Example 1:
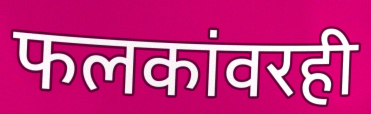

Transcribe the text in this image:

फलकांवरही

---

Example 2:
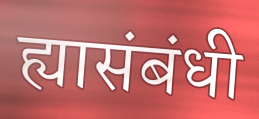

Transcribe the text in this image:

ह्यासंबंधी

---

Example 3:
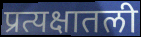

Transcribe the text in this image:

प्रत्यक्षातली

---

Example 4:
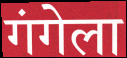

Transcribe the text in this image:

गंगेला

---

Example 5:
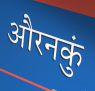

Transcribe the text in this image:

औरनकुं